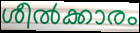
ശീൽക്കാരം